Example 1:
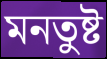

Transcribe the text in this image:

মনতুষ্ট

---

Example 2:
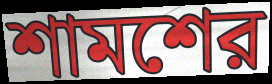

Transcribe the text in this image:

শামশের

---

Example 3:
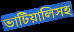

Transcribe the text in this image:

ভাটিয়ালিসহ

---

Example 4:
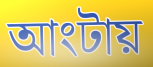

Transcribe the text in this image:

আংটায়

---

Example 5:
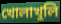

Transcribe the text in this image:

খোলাখুলি